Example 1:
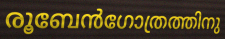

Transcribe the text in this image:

രൂബേൻഗോത്രത്തിനു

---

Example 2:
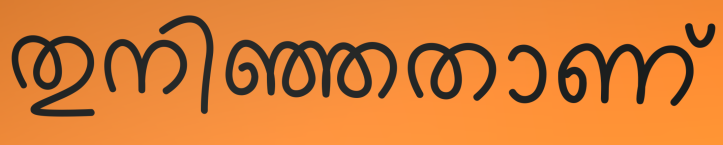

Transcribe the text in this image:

തുനിഞ്ഞതാണ്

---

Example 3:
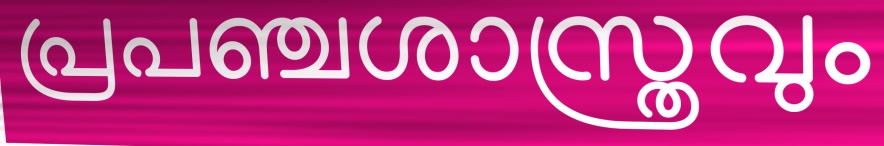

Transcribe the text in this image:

പ്രപഞ്ചശാസ്ത്രവും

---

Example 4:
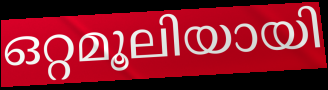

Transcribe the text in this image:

ഒറ്റമൂലിയായി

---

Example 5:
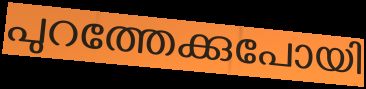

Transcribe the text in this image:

പുറത്തേക്കുപോയി